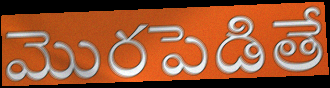
మొరపెడితే